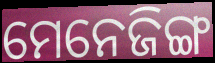
ମେନେଜିଙ୍ଗ